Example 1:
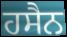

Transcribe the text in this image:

ਹਸੈਨ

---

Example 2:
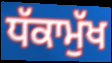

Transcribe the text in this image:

ਧੱਕਾਮੁੱਖ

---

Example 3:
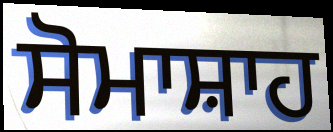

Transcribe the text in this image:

ਸੋਮਾਸ਼ਾਹ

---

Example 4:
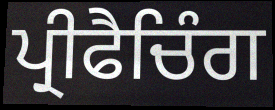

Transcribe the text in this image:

ਪ੍ਰੀਫੈਚਿੰਗ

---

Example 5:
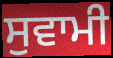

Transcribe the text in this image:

ਸੁਵਾਮੀ